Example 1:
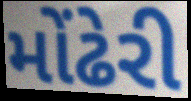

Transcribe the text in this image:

મોંઢેરી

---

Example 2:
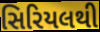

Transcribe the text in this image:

સિરિયલથી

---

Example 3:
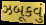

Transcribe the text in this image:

ઝબૂકવું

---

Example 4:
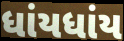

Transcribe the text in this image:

ધાંયધાંય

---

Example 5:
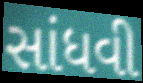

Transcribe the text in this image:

સાંધવી